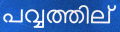
പവ്വത്തില്